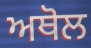
ਅਥੋਲ